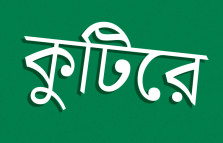
কুটিরে